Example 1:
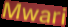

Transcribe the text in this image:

Mwari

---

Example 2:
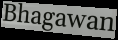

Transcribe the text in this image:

Bhagawan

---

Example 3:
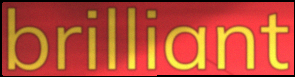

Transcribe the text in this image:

brilliant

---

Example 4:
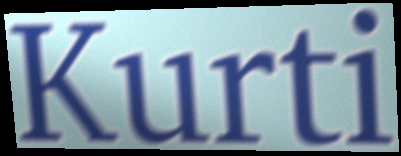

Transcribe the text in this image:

Kurti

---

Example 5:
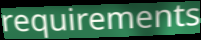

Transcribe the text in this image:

requirements